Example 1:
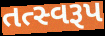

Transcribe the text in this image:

તત્સ્વરૂપ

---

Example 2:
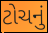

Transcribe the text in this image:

ટોચનું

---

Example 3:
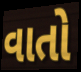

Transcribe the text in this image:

વાતો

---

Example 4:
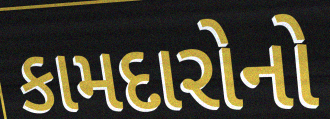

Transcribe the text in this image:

કામદારોનો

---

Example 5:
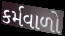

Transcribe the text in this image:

કર્મવાળો